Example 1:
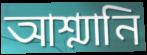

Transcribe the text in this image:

আশ্মানি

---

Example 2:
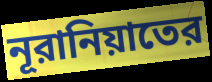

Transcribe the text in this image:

নূরানিয়াতের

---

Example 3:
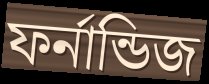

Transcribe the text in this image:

ফর্নান্ডিজ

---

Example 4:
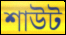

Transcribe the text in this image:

শাউট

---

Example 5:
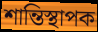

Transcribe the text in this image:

শান্তিস্থাপক